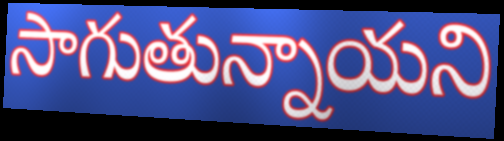
సాగుతున్నాయని